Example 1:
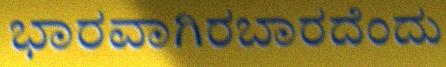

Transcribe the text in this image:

ಭಾರವಾಗಿರಬಾರದೆಂದು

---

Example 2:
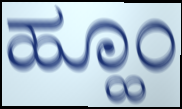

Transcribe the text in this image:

ಹ್ಹೂಂ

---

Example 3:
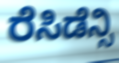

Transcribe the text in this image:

ರೆಸಿಡೆನ್ಸಿ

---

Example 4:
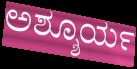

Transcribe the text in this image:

ಅಶ್ಶೂರ್ಯ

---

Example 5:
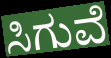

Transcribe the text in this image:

ಸಿಗುವೆ